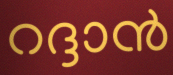
റദ്ദാൻ